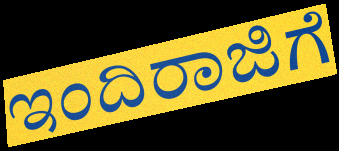
ಇಂದಿರಾಜಿಗೆ